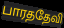
பாரததேவி